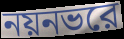
নয়নভরে